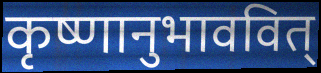
कृष्णानुभाववित्